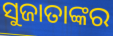
ସୁଜାତାଙ୍କର